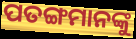
ପତଙ୍ଗମାନଙ୍କୁ